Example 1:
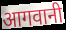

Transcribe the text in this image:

आगवानी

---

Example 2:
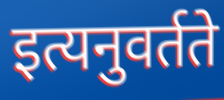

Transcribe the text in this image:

इत्यनुवर्तते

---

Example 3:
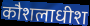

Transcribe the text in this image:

कौशलाधीश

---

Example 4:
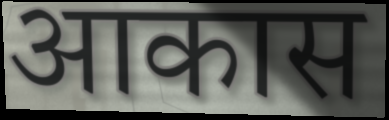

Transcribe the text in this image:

आकास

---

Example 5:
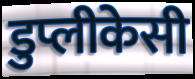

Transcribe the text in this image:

डुप्लीकेसी